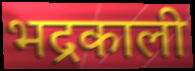
भद्रकाली